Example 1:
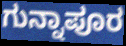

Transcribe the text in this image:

ಗುನ್ನಾಪೂರ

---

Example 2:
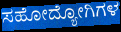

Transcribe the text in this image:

ಸಹೋದ್ಯೋಗಿಗಳ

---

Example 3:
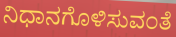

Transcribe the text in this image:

ನಿಧಾನಗೊಳಿಸುವಂತೆ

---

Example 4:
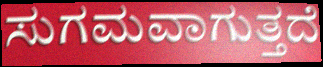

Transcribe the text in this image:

ಸುಗಮವಾಗುತ್ತದೆ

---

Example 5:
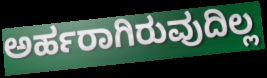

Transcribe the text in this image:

ಅರ್ಹರಾಗಿರುವುದಿಲ್ಲ